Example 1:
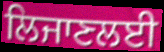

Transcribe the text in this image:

ਲਿਜਾਣਲਈ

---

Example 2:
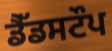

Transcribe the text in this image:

ਡੈੱਡਸਟੌਪ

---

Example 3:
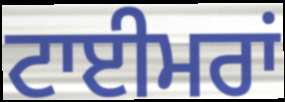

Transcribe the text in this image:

ਟਾਈਮਰਾਂ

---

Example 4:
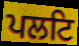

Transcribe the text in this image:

ਪਲਟਿ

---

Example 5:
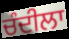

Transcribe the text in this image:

ਚੰਦੀਲਾ